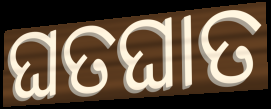
ଘତଘାତ